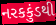
નરકકુંડથી